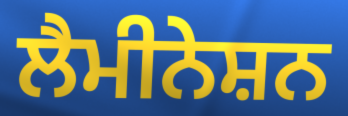
ਲੈਮੀਨੇਸ਼ਨ